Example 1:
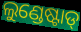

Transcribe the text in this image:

ଲୁଣ୍ଡେଷ୍ଟାଡ୍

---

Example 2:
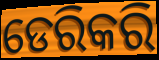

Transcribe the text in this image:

ଡେରିକରି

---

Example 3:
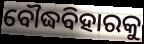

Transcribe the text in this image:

ବୌଦ୍ଧବିହାରକୁ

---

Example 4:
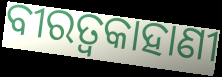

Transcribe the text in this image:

ବୀରତ୍ୱକାହାଣୀ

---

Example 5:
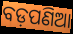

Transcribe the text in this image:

ବଡ଼ପଣିଆ